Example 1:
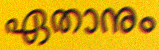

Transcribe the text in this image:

ഏതാനും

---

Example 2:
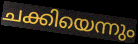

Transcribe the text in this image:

ചക്കിയെന്നും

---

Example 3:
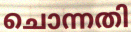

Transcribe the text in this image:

ചൊന്നതി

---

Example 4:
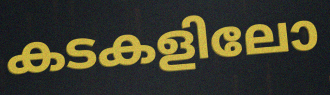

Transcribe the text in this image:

കടകളിലോ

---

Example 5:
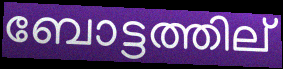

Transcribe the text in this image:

ബോട്ടത്തില്